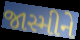
જાસ્મીને